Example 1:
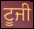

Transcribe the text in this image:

ਟੂਜੀ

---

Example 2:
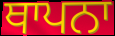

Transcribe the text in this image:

ਥਾਪਨਾ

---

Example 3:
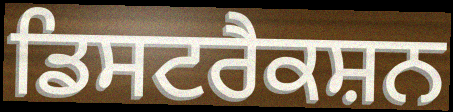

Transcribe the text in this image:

ਡਿਸਟਰੈਕਸ਼ਨ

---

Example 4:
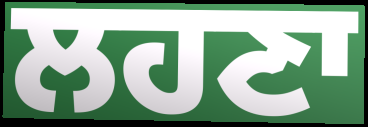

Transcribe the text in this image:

ਲਹਣਾ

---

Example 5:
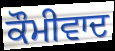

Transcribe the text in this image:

ਕੌਮੀਵਾਦ